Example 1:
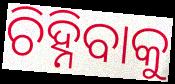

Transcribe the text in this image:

ଚିହ୍ନିବାକୁ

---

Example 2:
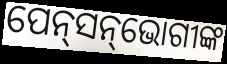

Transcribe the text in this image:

ପେନ୍‌ସନ୍‌ଭୋଗୀଙ୍କ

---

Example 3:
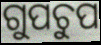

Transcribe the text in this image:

ଗୁପଚୁପ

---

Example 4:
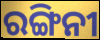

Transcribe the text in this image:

ରଙ୍ଗିନୀ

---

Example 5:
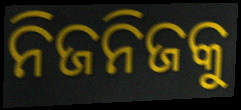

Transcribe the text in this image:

ନିଜନିଜକୁ